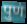
पुणं